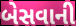
બેસવાની